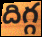
దిగ్గ